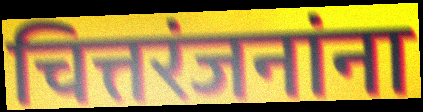
चित्तरंजनांना